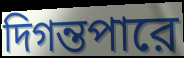
দিগন্তপারে